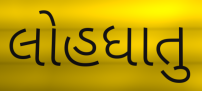
લોહધાતુ